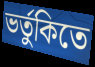
ভর্তুকিতে